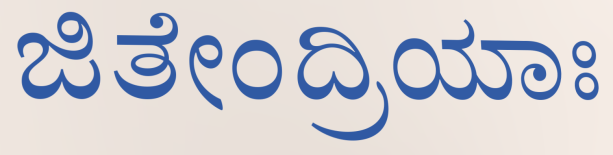
ಜಿತೇಂದ್ರಿಯಾಃ